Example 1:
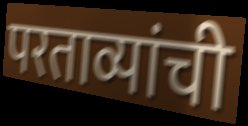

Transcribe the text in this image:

परताव्यांची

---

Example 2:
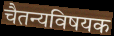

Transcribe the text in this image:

चैतन्यविषयक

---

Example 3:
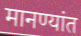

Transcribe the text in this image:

मानण्यांत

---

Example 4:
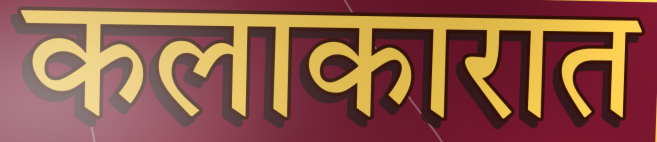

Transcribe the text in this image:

कलाकारात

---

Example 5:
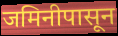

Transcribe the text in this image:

जमिनीपासून